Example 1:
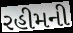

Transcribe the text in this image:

રહીમની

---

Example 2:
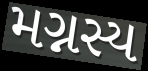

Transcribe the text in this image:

મગ્નસ્ય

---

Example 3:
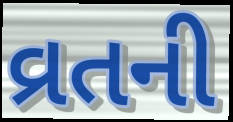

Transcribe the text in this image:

વ્રતની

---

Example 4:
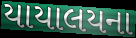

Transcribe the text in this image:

યાયાલયના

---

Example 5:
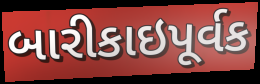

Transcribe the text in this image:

બારીકાઇપૂર્વક